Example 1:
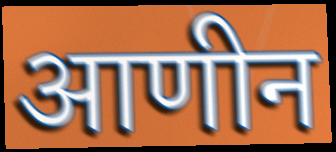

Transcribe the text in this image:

आणीन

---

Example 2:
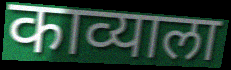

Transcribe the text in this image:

काव्याला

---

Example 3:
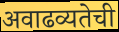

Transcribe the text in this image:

अवाढव्यतेची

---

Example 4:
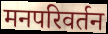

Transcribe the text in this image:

मनपरिवर्तन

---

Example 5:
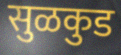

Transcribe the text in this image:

सुळकुड